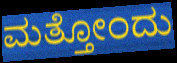
ಮತ್ತೋಂದು